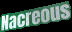
Nacreous